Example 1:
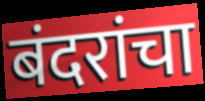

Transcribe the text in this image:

बंदरांचा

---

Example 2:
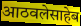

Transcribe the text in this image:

आठवलेसाहेब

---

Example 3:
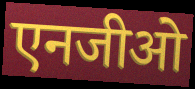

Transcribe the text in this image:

एनजीओ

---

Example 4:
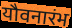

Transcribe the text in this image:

यौवनारंभ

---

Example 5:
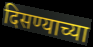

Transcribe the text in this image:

दिसण्याच्या